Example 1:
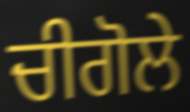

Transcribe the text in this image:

ਚੀਗੋਲੇ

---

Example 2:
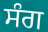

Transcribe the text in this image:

ਸੰਗ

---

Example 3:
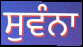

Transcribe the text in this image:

ਸੁਵੰਨਾ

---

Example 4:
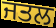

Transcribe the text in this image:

ਜਤਲ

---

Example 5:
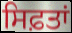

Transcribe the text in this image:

ਸਿਫ਼ਤਾਂ